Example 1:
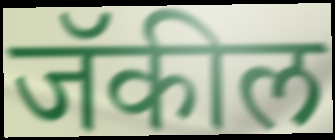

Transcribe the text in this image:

जॅकील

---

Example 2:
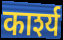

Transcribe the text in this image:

कार्श्य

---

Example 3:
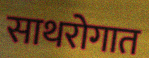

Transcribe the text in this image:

साथरोगात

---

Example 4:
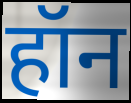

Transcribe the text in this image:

हॉन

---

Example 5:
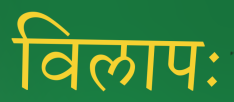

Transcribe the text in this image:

विलापः